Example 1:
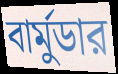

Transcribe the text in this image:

বার্মুডার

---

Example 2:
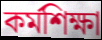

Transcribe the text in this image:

কর্মশিক্ষা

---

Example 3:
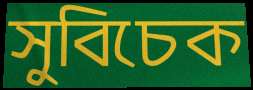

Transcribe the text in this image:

সুবিচেক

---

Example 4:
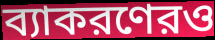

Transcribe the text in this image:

ব্যাকরণেরও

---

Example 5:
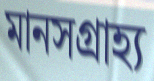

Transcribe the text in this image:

মানসগ্রাহ্য